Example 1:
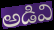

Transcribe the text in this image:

అడివి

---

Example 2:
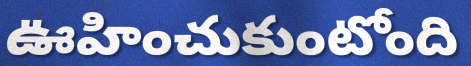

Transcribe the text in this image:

ఊహించుకుంటోంది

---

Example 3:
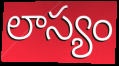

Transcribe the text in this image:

లాస్యం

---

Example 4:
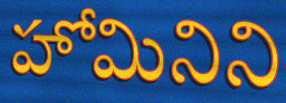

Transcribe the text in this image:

హోమినిని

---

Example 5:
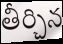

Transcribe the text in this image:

తీర్చిన